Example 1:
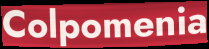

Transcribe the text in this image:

Colpomenia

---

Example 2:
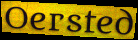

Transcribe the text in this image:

Oersted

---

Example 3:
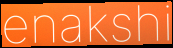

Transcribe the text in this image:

enakshi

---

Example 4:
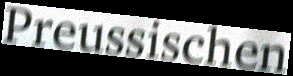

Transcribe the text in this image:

Preussischen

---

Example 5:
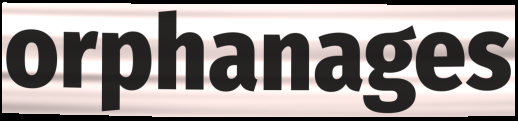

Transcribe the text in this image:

orphanages